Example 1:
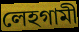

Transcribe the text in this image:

লেহগামী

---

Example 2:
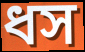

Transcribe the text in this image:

ধস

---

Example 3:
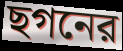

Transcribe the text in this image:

ছগনের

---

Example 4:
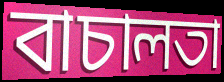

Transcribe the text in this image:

বাচালতা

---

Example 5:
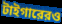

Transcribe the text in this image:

টাইগারেরও